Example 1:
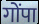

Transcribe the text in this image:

गोंपा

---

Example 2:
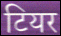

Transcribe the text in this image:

टियर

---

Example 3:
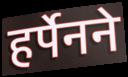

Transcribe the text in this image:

हर्पेनने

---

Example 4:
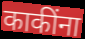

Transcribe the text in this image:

काकींना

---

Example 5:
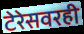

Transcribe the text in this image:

टेरेसवरही